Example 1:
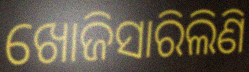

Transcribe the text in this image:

ଖୋଜିସାରିଲିଣି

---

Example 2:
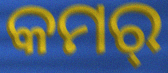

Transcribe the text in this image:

କମର୍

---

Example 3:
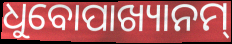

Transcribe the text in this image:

ଧୁବୋପାଖ୍ୟାନମ୍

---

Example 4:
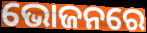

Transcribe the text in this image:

ଭୋଜନରେ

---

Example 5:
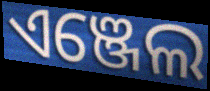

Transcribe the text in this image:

ଏଞ୍ଜେଲ